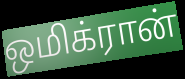
ஒமிக்ரான்